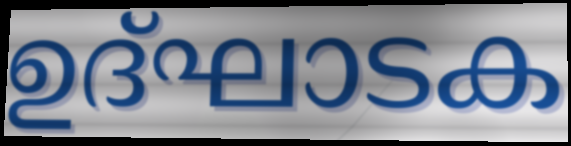
ഉദ്ഘാടക